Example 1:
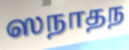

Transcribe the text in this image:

ஸநாதந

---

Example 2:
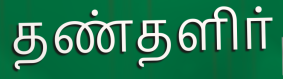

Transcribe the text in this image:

தண்தளிர்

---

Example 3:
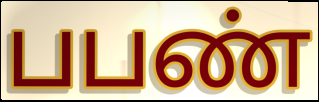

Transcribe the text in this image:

பபண்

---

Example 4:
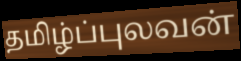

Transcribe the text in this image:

தமிழ்ப்புலவன்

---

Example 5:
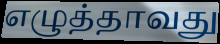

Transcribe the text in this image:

எழுத்தாவது